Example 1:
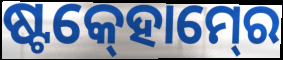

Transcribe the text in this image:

ଷ୍ଟକ୍‍ହୋମ୍‍ରେ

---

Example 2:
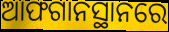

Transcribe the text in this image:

ଆଫଗାନସ୍ଥାନରେ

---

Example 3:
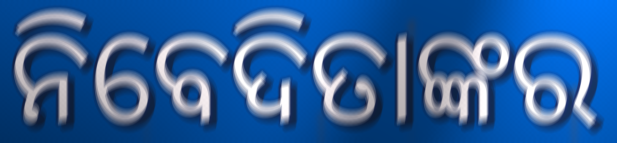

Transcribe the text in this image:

ନିବେଦିତାଙ୍କର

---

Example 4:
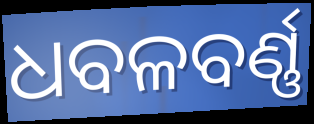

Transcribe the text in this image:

ଧବଳବର୍ଣ୍ଣ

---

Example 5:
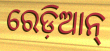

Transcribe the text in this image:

ରେଡ଼ିଆନ୍